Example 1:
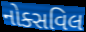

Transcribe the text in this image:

નોક્સવિલ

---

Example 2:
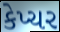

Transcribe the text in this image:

કેપ્ચર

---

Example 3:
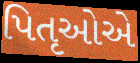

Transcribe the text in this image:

પિતૃઓએ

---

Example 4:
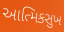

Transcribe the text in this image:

આત્મિકસુખ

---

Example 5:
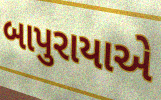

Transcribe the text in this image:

બાપુરાયાએ